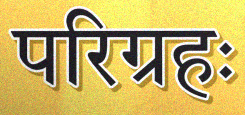
परिग्रहः